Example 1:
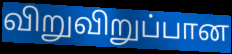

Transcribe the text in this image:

விறுவிறுப்பான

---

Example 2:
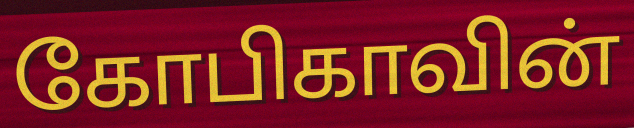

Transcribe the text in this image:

கோபிகாவின்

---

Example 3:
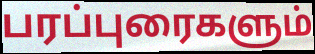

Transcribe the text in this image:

பரப்புரைகளும்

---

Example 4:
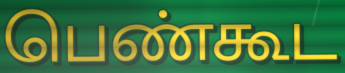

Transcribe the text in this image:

பெண்கூட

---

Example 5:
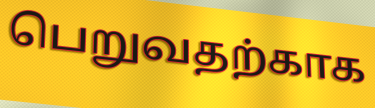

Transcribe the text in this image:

பெறுவதற்காக